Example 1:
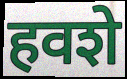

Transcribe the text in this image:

हवशे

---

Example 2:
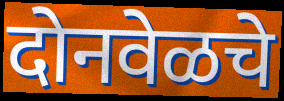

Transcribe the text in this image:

दोनवेळचे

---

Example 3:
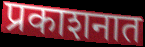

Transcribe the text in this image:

प्रकाशनात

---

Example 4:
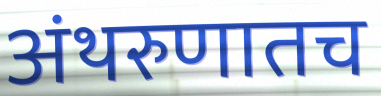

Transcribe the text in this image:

अंथरुणातच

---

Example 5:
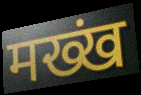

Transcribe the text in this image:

मख्खं